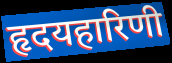
हृदयहारिणी